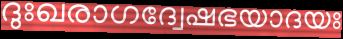
ദുഃഖരാഗദ്വേഷഭയാദയഃ